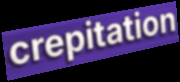
crepitation